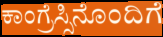
ಕಾಂಗ್ರೆಸ್ಸಿನೊಂದಿಗೆ